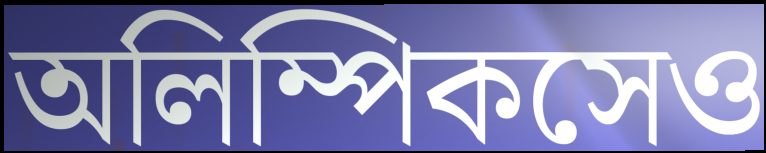
অলিম্পিকসেও